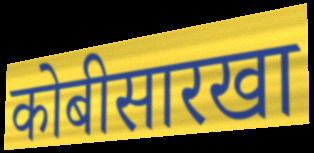
कोबीसारखा